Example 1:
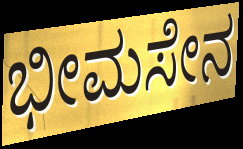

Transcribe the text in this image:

ಭೀಮಸೇನ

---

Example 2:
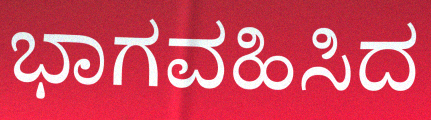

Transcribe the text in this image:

ಭಾಗವಹಿಸಿದ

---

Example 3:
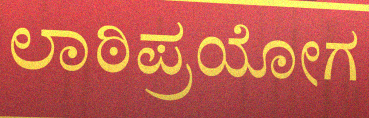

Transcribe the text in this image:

ಲಾಠಿಪ್ರಯೋಗ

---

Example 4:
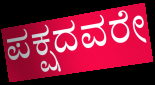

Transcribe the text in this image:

ಪಕ್ಷದವರೇ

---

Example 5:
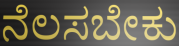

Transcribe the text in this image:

ನೆಲಸಬೇಕು